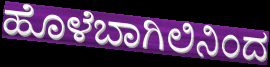
ಹೊಳೆಬಾಗಿಲಿನಿಂದ